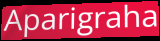
Aparigraha